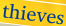
thieves